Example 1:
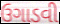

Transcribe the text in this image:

ઉગાડવી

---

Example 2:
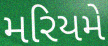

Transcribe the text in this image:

મરિયમે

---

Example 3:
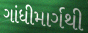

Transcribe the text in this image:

ગાંધીમાર્ગથી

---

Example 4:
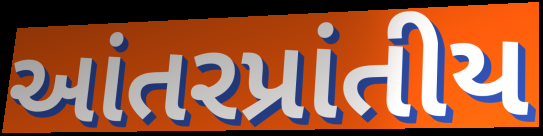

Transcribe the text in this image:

આંતરપ્રાંતીય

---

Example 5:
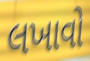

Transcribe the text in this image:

લખાવો